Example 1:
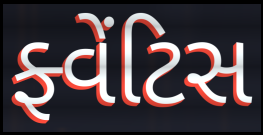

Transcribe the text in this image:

ફ્વેંટિસ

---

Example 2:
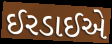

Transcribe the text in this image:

ઈરડાઈએ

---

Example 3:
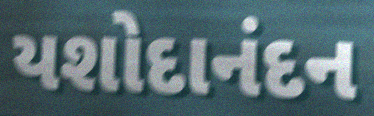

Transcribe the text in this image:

યશોદાનંદન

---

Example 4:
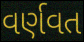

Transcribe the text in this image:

વર્ણવત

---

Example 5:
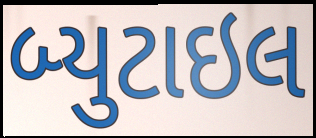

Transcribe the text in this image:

બ્યુટાઇલ